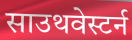
साउथवेस्टर्न